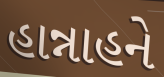
હાન્નાહને